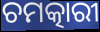
ଚମତ୍କାରୀ